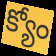
క్యోం